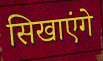
सिखाएंगे